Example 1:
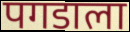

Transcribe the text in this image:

पगडाला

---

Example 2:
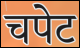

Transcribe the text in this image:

चपेट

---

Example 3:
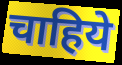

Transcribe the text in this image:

चाहिये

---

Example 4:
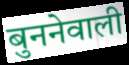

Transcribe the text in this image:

बुननेवाली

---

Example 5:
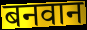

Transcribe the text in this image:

बनवान